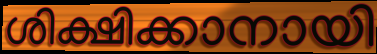
ശിക്ഷിക്കാനായി